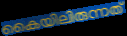
കൈയിലിരുന്നത്